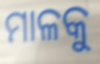
ମାଳକୁ